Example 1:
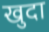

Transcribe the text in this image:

खुदा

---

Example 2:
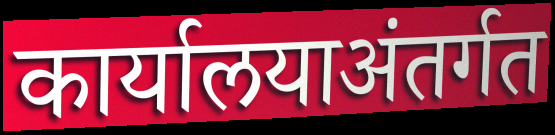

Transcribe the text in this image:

कार्यालयाअंतर्गत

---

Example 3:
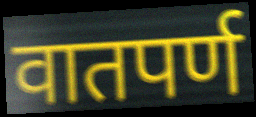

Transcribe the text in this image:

वातपर्ण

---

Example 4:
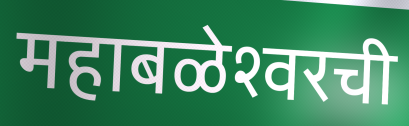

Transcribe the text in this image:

महाबळेश्वरची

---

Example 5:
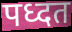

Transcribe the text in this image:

पध्दत